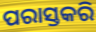
ପରାସ୍ତକରି